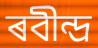
ৰবীন্দ্ৰ